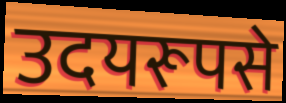
उदयरूपसे